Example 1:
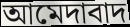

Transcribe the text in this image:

আমেদাবাদ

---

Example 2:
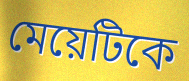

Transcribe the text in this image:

মেয়েটিকে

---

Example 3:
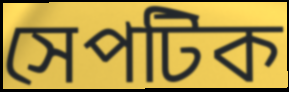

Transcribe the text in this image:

সেপটিক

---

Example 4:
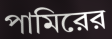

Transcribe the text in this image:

পামিরের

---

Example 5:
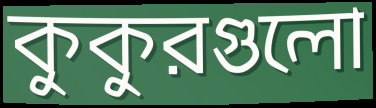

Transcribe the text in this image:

কুকুরগুলো